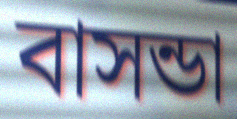
বাসন্ডা